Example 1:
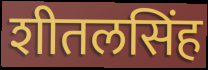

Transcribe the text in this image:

शीतलसिंह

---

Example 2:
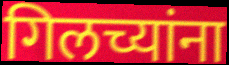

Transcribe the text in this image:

गिलच्यांना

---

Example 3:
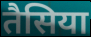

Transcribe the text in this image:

तैसिया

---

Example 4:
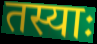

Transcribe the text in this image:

तस्याः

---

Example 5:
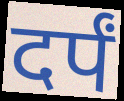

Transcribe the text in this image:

दर्पं